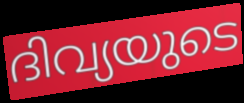
ദിവ്യയുടെ